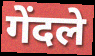
गेंदले